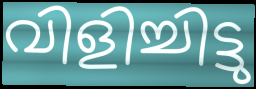
വിളിച്ചിട്ടു